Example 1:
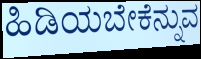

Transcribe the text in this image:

ಹಿಡಿಯಬೇಕೆನ್ನುವ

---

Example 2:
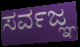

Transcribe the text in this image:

ಸರ್ವಜ್ಞ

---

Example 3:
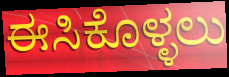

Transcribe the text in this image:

ಈಸಿಕೊಳ್ಳಲು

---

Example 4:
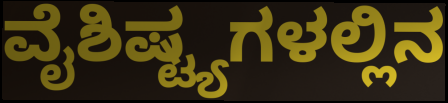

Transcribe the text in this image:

ವೈಶಿಷ್ಟ್ಯಗಳಲ್ಲಿನ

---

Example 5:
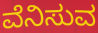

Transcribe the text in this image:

ವೆನಿಸುವ